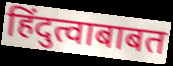
हिंदुत्वाबाबत